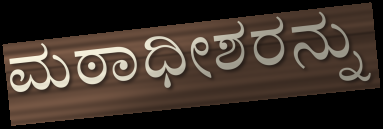
ಮಠಾಧೀಶರನ್ನು